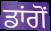
ਡਾਂਗੋਂ